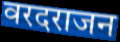
वरदराजन